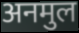
अनमुल